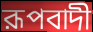
রূপবাদী